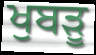
ਖੁਬੜੂ